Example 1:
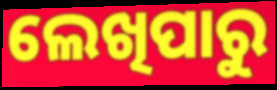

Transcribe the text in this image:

ଲେଖିପାରୁ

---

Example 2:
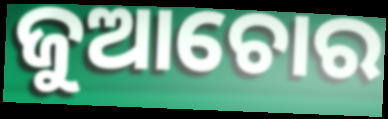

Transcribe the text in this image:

ଜୁଆଚୋର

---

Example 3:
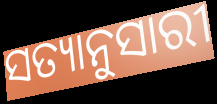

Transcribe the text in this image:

ସତ୍ୟାନୁସାରୀ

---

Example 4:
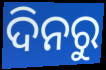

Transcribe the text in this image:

ଦିନରୁ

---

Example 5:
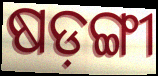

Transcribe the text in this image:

ଷଡ଼ଙ୍ଗୀ